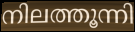
നിലത്തൂന്നി